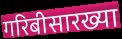
गरिबीसारख्या